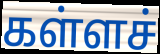
கள்ளச்